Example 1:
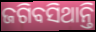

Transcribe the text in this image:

ଜଗିବସିଥାନ୍ତି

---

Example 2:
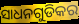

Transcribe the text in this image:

ସାଧନଗୁଡିକର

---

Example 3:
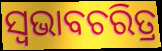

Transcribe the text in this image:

ସ୍ବଭାବଚରିତ୍ର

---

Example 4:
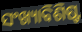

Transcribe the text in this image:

ସଂଖ୍ୟାବିଶିଷ୍ଟ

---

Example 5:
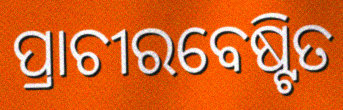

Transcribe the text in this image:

ପ୍ରାଚୀରବେଷ୍ଟିତ